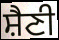
ਸ਼ੈਣੀ